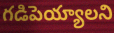
గడిపెయ్యాలని